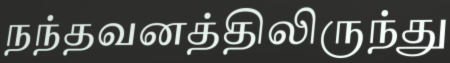
நந்தவனத்திலிருந்து